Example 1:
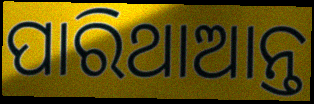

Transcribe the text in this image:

ପାରିଥାଆନ୍ତ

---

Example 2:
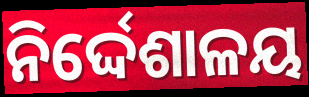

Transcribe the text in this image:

ନିର୍ଦ୍ଦେଶାଳୟ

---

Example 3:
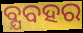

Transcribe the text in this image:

ବ୍ଯବହର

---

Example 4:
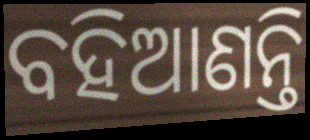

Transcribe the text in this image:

ବହିଆଣନ୍ତି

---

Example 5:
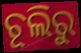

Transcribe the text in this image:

ଚୂଲିରୁ